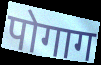
पोगाग